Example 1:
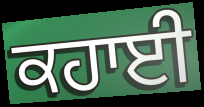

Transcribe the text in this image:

ਕਹਾਈ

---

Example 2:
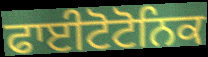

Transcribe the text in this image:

ਫਾਈਟੋਟੋਨਿਕ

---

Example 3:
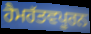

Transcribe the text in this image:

ਹੈਮਹੱਤਵਪੂਰਨ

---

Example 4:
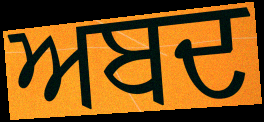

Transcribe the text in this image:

ਅਬਦ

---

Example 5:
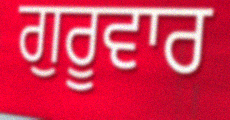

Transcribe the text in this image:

ਗੁਰੂਵਾਰ